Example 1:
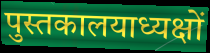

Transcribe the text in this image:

पुस्तकालयाध्यक्षों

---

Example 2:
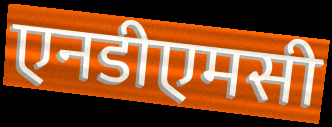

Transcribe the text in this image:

एनडीएमसी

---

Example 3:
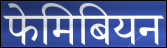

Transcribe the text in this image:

फेमिबियन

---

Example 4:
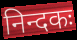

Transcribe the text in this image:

निन्दकः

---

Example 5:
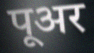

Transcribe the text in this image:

पूअर